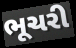
ભૂચરી